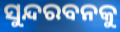
ସୁନ୍ଦରବନକୁ